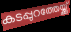
കടപ്പുറത്തേയ്ക്കു്